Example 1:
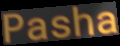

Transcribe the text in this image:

Pasha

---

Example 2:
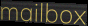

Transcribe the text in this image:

mailbox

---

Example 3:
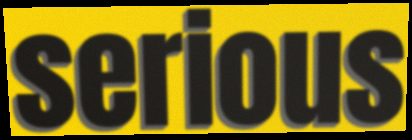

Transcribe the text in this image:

serious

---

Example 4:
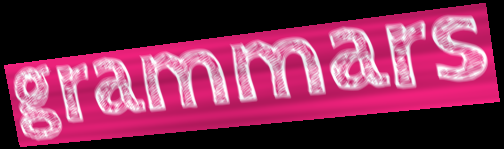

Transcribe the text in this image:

grammars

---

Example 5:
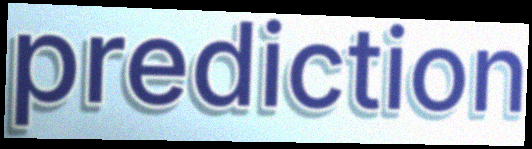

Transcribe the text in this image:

prediction